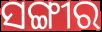
ସଙ୍ଗୀର